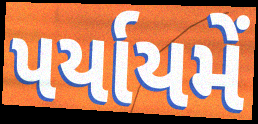
પર્યાયમેં